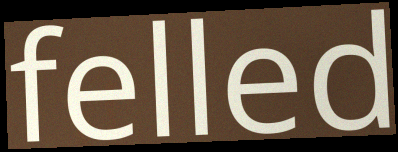
felled